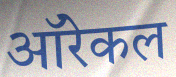
ऑरेकल